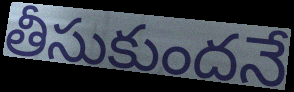
తీసుకుందనే